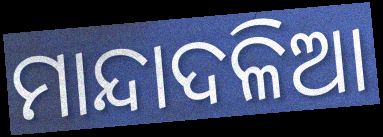
ମାନ୍ଦାଦଳିଆ